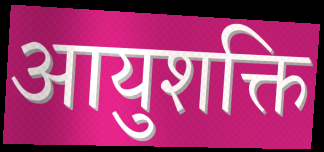
आयुशक्ति